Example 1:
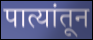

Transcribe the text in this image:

पात्यांतून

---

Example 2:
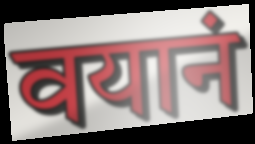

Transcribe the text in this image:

वयानं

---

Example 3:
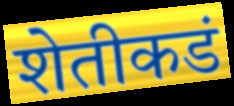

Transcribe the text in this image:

शेतीकडं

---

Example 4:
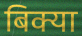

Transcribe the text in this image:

बिक्या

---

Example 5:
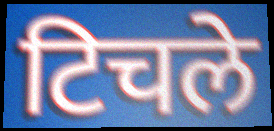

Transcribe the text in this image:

टिचले